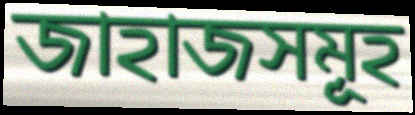
জাহাজসমূহ